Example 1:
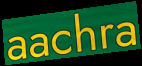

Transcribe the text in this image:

aachra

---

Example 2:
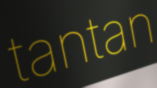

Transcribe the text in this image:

tantan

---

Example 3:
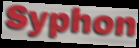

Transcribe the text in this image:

Syphon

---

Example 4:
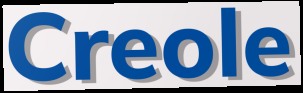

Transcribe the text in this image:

Creole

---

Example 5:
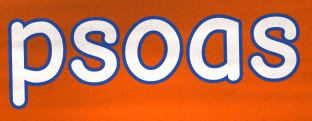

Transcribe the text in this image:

psoas